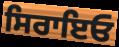
ਸਿਰਾਇਓ